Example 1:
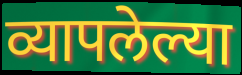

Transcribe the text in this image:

व्यापलेल्या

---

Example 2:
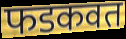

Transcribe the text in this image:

फडकवत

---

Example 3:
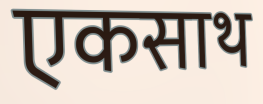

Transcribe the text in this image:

एकसाथ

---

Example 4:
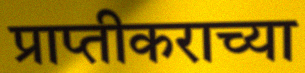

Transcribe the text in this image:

प्राप्तीकराच्या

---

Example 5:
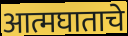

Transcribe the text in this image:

आत्मघाताचे